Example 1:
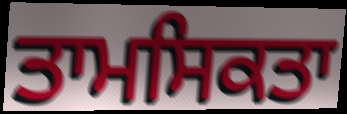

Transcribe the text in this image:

ਤਾਮਸਿਕਤਾ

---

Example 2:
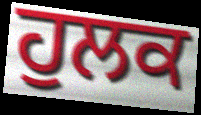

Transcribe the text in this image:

ਹੁਲਕ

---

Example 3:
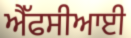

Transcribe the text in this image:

ਐੱਫਸੀਆਈ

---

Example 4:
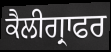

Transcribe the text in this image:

ਕੈਲੀਗ੍ਰਾਫਰ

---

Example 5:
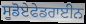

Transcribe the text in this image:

ਸੂਡੋਏਫੇਡਰਾਈਨ